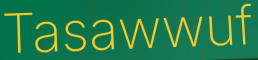
Tasawwuf